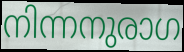
നിന്നനുരാഗ